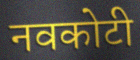
नवकोटी